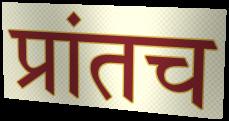
प्रांतच